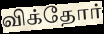
விக்தோர்